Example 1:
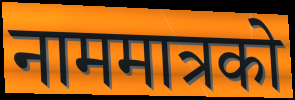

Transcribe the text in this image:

नाममात्रको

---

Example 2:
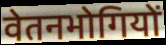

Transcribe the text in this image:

वेतनभोगियों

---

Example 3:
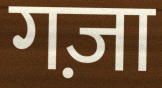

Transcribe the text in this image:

गज़ा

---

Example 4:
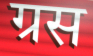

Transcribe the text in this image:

ग्रस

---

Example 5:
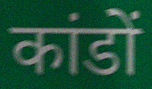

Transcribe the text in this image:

कांडों